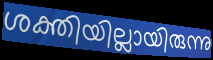
ശക്തിയില്ലായിരുന്നു